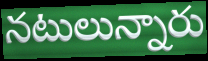
నటులున్నారు